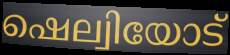
ഷെല്വിയോട്